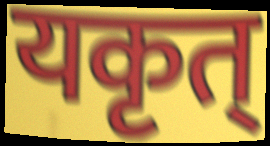
यकृत्